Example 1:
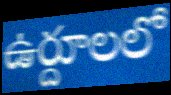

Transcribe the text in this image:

ఉర్దూలలో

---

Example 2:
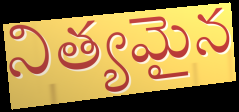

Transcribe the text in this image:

నిత్యమైన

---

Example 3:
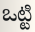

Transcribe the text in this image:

ఒట్టి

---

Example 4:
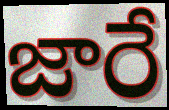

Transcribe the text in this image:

జారే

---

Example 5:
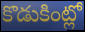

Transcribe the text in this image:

కొడుకింట్లో